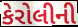
કેરોલીની